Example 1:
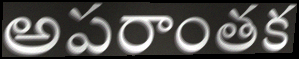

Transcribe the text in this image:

అపరాంతక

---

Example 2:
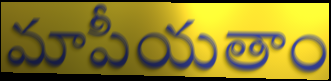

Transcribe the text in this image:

మాపీయతాం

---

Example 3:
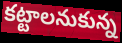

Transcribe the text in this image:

కట్టాలనుకున్న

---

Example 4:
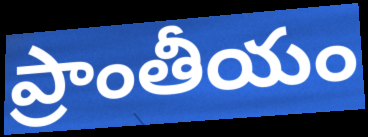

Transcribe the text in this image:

ప్రాంతీయం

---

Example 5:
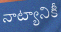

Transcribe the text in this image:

నాట్యానికీ